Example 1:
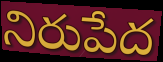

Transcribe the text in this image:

నిరుపేద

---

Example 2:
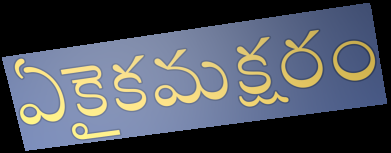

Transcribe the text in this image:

ఏకైకమక్షరం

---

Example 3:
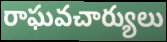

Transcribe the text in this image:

రాఘవచార్యులు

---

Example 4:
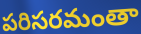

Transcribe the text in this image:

పరిసరమంతా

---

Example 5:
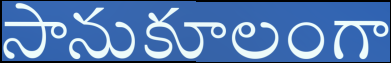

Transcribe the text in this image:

సానుకూలంగా